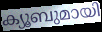
ക്യൂബുമായി